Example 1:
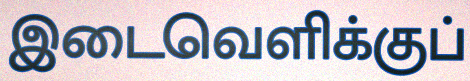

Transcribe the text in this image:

இடைவெளிக்குப்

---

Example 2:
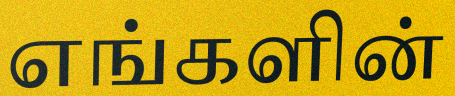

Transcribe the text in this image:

எங்களின்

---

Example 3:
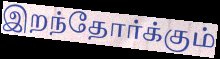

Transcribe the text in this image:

இறந்தோர்க்கும்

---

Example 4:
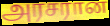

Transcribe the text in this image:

அரசரான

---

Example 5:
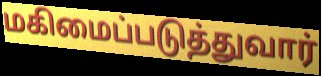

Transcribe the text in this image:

மகிமைப்படுத்துவார்